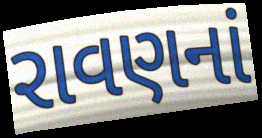
રાવણનાં